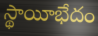
స్థాయీభేదం